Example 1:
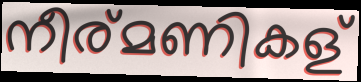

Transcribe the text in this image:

നീര്മണികള്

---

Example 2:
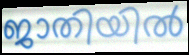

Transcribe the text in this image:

ജാതിയിൽ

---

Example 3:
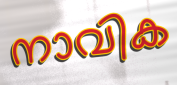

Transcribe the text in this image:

നാവിക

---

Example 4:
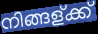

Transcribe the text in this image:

നിങ്ങള്ക്ക്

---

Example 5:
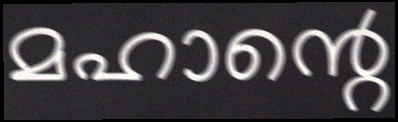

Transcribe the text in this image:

മഹാന്റെ